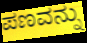
ಪಣವನ್ನು